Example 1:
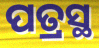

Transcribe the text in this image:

ପତ୍ରସ୍ଥ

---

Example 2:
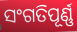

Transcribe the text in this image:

ସଂଗତିପୂର୍ଣ୍ଣ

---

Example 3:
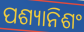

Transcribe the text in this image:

ପଶ୍ୟାନିଶଂ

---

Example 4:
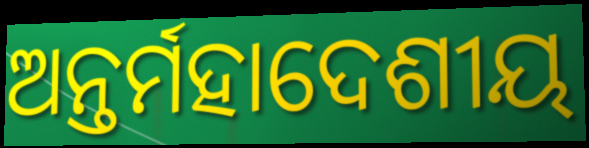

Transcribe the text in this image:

ଅନ୍ତର୍ମହାଦେଶୀୟ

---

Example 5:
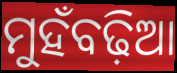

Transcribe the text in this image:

ମୁହଁବଢ଼ିଆ